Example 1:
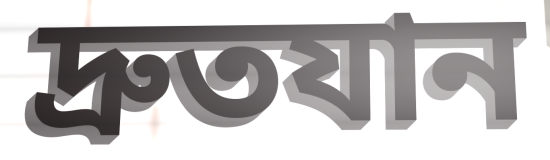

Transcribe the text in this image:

দ্রুতযান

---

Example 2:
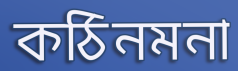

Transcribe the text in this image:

কঠিনমনা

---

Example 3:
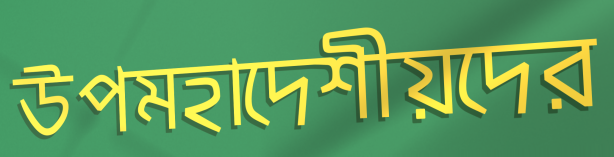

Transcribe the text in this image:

উপমহাদেশীয়দের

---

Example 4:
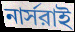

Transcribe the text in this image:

নার্সরাই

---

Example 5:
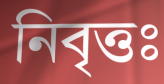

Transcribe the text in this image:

নিবৃত্তঃ